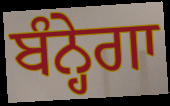
ਬੰਨ੍ਹੇਗਾ